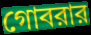
গোবরার